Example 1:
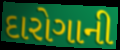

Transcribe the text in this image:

દારોગાની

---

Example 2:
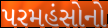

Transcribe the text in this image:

પરમહંસોનો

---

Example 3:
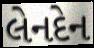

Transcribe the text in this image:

લેનદેન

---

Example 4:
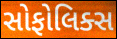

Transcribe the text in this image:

સોફોલિક્સ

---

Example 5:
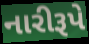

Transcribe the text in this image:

નારીરૂપે